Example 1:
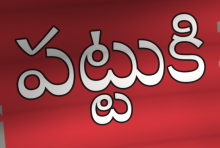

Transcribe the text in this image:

పట్టుకి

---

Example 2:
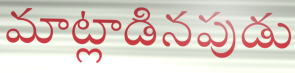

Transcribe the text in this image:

మాట్లాడినపుడు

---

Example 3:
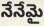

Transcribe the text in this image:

నేనేమై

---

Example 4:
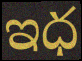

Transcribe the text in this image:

ఇధ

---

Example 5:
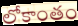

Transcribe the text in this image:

లోకాంతం